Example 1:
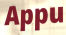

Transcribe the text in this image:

Appu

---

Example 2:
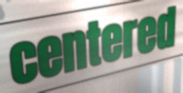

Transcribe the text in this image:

centered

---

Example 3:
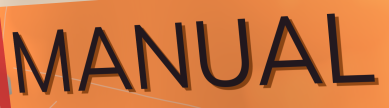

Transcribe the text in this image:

MANUAL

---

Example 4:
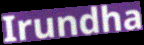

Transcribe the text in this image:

Irundha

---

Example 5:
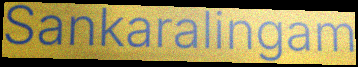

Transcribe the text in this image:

Sankaralingam